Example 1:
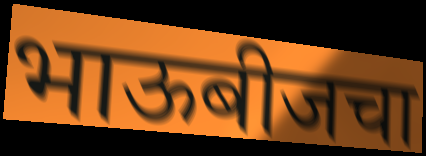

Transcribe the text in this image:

भाऊबीजचा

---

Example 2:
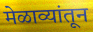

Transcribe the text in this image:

मेळाव्यांतून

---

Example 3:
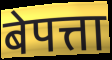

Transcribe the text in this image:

बेपत्ता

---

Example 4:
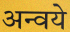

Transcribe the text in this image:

अन्वये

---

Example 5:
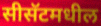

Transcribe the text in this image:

सीसॅटमधील